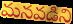
మనవడిని